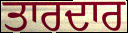
ਤਾਰਦਾਰ